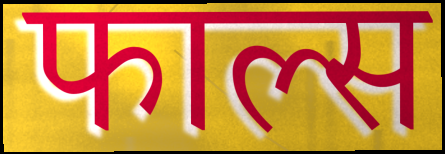
फाल्स